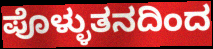
ಪೊಳ್ಳುತನದಿಂದ